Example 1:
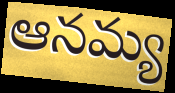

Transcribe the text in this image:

ఆనమ్య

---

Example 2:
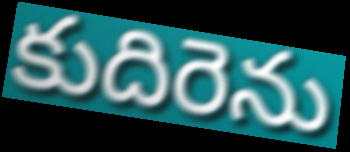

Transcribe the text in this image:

కుదిరెను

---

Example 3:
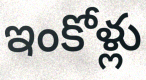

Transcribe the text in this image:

ఇంకోళ్లు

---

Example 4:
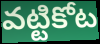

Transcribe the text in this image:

వట్టికోట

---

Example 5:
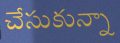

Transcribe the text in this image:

చేసుకున్నా